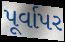
પૂર્વાપર